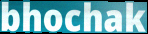
bhochak